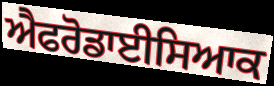
ਐਫਰੋਡਾਈਸਿਆਕ